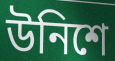
উনিশে